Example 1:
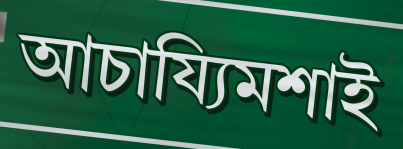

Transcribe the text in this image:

আচায্যিমশাই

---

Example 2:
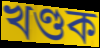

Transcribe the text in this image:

খণ্ডক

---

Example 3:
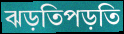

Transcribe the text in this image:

ঝড়তিপড়তি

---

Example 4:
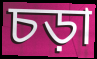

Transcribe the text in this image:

চড়া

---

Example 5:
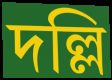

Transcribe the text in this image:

দল্লি